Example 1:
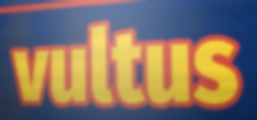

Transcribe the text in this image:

vultus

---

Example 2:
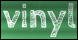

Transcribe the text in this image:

vinyl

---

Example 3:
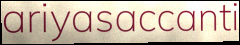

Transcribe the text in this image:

ariyasaccanti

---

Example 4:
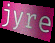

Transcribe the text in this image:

jyre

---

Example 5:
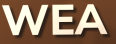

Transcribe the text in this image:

WEA